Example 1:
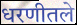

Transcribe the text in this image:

धरणीतले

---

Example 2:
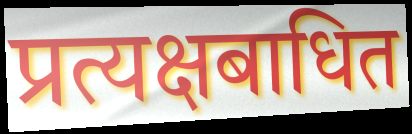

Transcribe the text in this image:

प्रत्यक्षबाधित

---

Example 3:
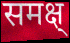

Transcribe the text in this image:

समक्ष्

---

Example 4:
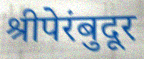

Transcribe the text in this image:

श्रीपेरंबुदूर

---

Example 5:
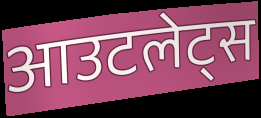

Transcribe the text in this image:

आउटलेट्स